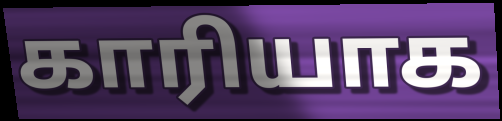
காரியாக